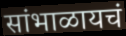
सांभाळायचं